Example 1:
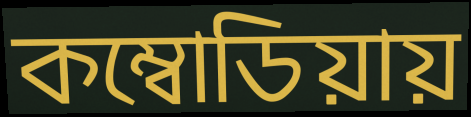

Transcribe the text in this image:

কম্বোডিয়ায়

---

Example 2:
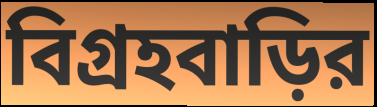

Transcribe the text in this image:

বিগ্রহবাড়ির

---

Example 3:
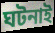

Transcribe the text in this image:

ঘটনাই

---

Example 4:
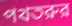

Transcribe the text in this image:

পথতরুর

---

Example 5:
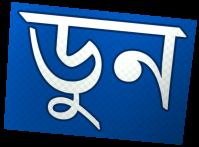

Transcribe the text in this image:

ডুন